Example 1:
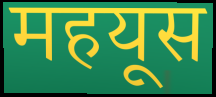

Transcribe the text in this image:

महयूस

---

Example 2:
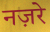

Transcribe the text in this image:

नज़रे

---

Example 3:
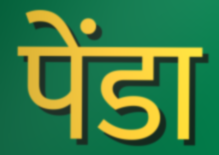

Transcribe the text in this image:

पेंडा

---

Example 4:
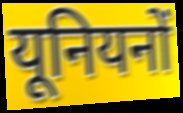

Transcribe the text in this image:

यूनियनों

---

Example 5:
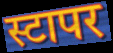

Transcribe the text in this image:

स्टापर